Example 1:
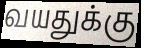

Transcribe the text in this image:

வயதுக்கு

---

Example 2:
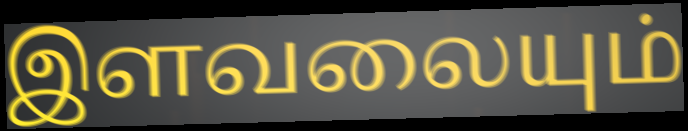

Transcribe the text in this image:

இளவலையும்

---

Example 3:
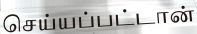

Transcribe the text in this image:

செய்யப்பட்டான்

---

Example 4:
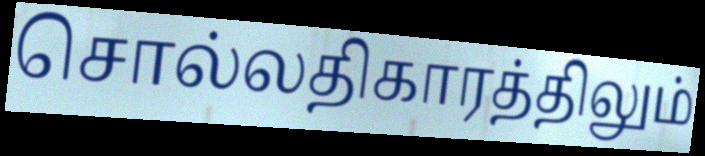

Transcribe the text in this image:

சொல்லதிகாரத்திலும்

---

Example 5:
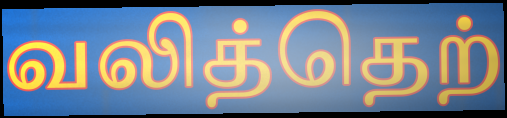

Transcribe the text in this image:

வலித்தெற்